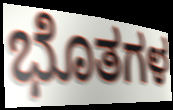
ಭೊತಗಳ